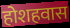
होशहवास